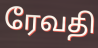
ரேவதி